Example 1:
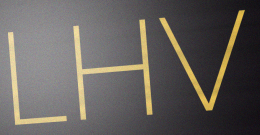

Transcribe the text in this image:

LHV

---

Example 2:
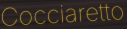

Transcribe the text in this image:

Cocciaretto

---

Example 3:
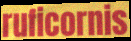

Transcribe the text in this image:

ruficornis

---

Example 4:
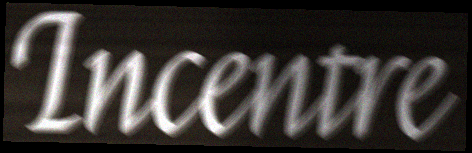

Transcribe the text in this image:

Incentre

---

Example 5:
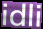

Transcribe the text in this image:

idli